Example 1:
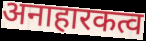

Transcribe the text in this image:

अनाहारकत्व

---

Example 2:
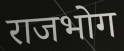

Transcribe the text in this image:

राजभोग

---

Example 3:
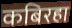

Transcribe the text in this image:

कबिरहा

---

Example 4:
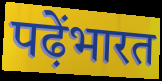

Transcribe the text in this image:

पढ़ेंभारत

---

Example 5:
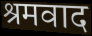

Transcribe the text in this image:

श्रमवाद